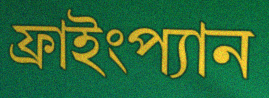
ফ্রাইংপ্যান